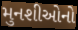
મુનશીઓનો